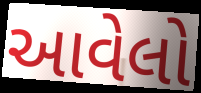
આવેલો